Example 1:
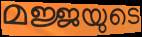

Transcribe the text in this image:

മജ്ജയുടെ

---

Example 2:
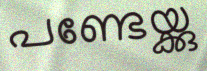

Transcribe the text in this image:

പണ്ടേയ്ക്കു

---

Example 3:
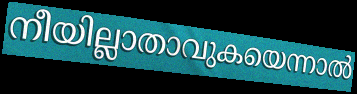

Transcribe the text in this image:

നീയില്ലാതാവുകയെന്നാൽ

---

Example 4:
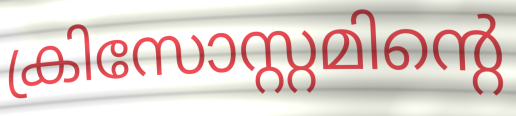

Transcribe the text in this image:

ക്രിസോസ്റ്റമിന്റെ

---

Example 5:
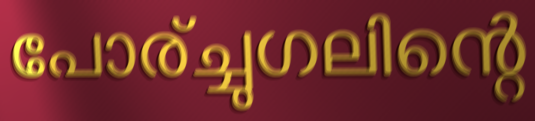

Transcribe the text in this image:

പോര്ച്ചുഗലിന്റെ